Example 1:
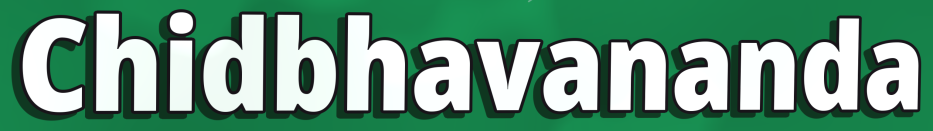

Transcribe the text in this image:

Chidbhavananda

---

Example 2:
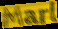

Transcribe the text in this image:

Marl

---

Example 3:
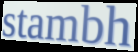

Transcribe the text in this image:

stambh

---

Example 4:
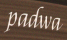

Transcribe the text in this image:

padwa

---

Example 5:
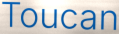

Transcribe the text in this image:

Toucan